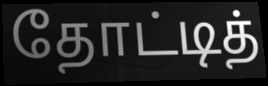
தோட்டித்